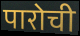
पारोची